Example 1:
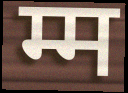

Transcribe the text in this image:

म्म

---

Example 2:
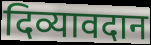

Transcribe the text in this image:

दिव्यावदान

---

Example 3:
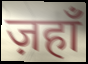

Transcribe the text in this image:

ज़हाँ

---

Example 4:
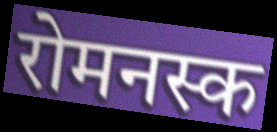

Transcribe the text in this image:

रोमनस्क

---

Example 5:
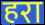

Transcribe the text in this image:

हरा